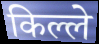
किल्ले